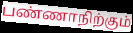
பண்ணாநிற்கும்